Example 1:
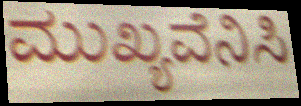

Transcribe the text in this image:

ಮುಖ್ಯವೆನಿಸಿ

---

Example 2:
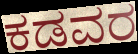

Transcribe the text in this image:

ಕಡವರ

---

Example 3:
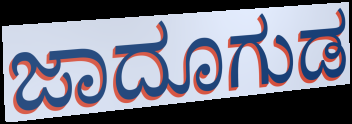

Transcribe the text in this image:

ಜಾದೂಗುಡ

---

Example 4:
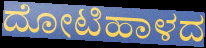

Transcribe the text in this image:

ದೋಟಿಹಾಳದ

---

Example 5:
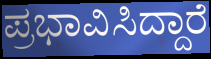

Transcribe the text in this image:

ಪ್ರಭಾವಿಸಿದ್ದಾರೆ